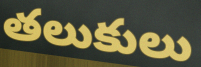
తలుకులు